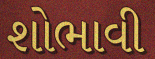
શોભાવી